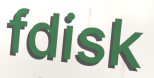
fdisk